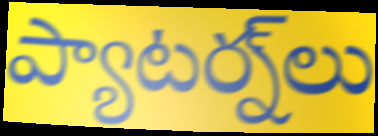
ప్యాటర్న్‌లు